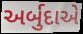
અર્બુદાએ